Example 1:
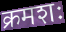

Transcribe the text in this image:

क्रमशः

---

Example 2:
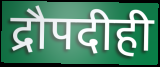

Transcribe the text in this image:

द्रौपदीही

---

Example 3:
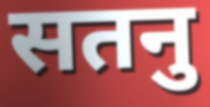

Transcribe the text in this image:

सतनु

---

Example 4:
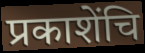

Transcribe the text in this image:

प्रकाशेंचि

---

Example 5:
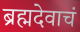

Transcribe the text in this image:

ब्रह्मदेवाचं